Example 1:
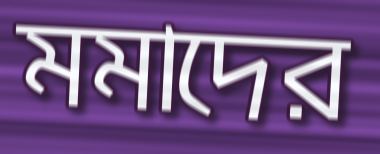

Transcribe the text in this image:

মমাদের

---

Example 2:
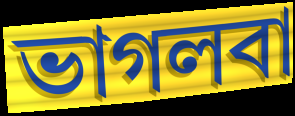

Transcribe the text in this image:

ভাগলবা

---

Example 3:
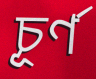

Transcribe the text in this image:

চূর্ণ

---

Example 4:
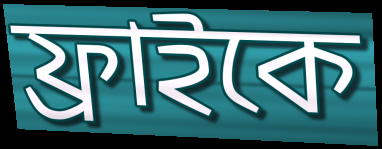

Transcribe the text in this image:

ফ্রাইকে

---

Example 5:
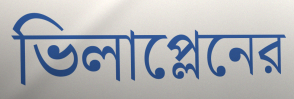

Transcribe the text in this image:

ভিলাপ্লেনের